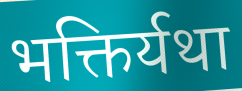
भक्तिर्यथा